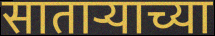
साताऱ्याच्या